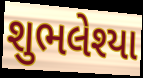
શુભલેશ્યા